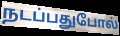
நடப்பதுபோல்